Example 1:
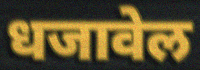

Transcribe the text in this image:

धजावेल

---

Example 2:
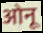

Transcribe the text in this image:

ओनू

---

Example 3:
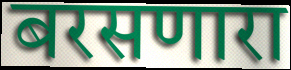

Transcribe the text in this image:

बरसणारा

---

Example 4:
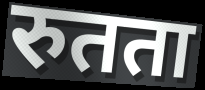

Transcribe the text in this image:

रुतता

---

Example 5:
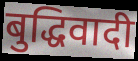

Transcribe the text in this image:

बुद्धिवादी